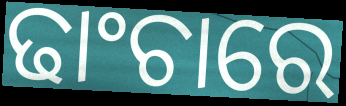
ଢାଂଚାରେ